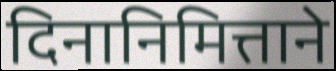
दिनानिमित्ताने